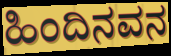
ಹಿಂದಿನವನ